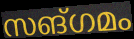
സങ്ഗമം